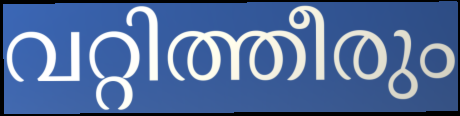
വറ്റിത്തീരും